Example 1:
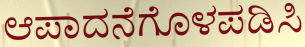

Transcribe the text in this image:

ಆಪಾದನೆಗೊಳಪಡಿಸಿ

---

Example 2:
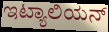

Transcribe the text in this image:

ಇಟ್ಯಾಲಿಯನ್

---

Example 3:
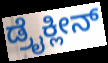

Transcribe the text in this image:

ಡ್ರೈಕ್ಲೀನ್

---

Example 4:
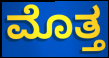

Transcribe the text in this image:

ಮೊತ್ತ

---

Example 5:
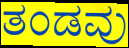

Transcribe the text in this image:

ತಂಡವು